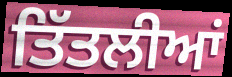
ਤਿੱਤਲੀਆਂ